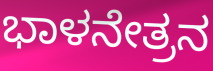
ಭಾಳನೇತ್ರನ